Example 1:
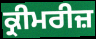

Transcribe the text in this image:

ਕ੍ਰੀਮਰੀਜ਼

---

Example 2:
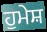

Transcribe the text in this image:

ਹੁਮੇਸ਼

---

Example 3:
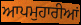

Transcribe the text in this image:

ਆਪਮੁਹਾਰੀਆਂ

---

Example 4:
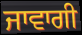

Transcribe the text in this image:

ਜਾਵਾਗੀ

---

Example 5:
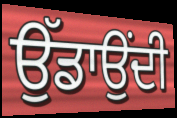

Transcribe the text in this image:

ਉੱਡਾਉਂਦੀ